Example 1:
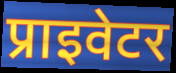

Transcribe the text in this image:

प्राइवेटर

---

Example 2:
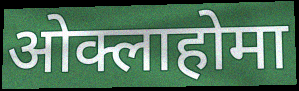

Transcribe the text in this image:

ओक्लाहोमा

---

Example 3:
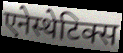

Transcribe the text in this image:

एनेस्थेटिक्स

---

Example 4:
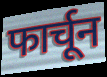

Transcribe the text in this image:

फार्चून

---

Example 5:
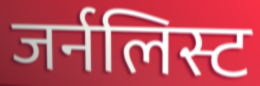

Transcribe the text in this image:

जर्नलिस्ट